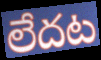
లేదట